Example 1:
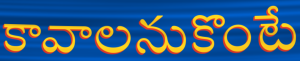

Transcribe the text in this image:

కావాలనుకొంటే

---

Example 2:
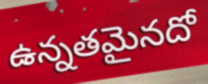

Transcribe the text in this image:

ఉన్నతమైనదో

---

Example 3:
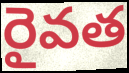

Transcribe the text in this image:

రైవత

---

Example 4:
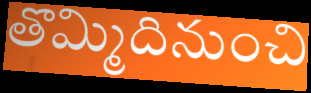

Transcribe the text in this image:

తొమ్మిదినుంచి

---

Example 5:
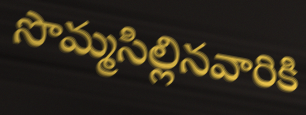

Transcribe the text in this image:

సొమ్మసిల్లినవారికి